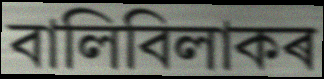
বালিবিলাকৰ